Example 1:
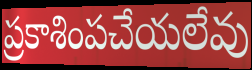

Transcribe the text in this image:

ప్రకాశింపచేయలేవు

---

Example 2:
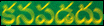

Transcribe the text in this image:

కనపడదు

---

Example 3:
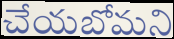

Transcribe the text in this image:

చేయబోమని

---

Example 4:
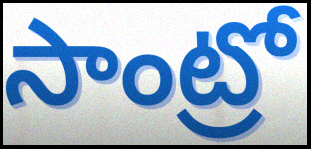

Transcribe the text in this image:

సాంట్రో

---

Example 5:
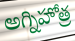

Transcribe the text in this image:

అగ్నిహోత్ర